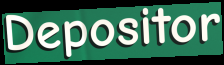
Depositor